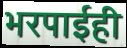
भरपाईही